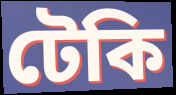
টেকি